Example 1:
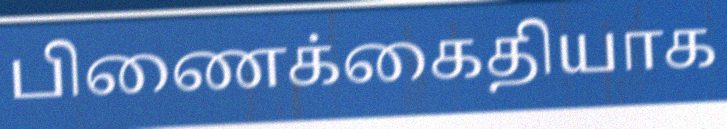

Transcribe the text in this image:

பிணைக்கைதியாக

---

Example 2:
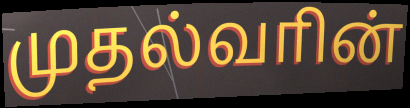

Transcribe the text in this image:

முதல்வரின்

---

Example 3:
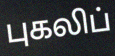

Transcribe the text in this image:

புகலிப்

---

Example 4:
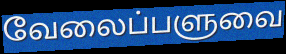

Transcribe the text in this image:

வேலைப்பளுவை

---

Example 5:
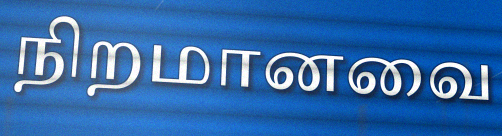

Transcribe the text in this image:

நிறமானவை